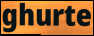
ghurte